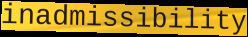
inadmissibility